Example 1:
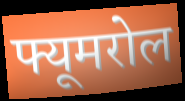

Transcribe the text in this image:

फ्यूमरोल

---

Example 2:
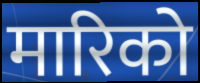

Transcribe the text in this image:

मारिको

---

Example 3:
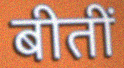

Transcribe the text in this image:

बीतीं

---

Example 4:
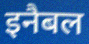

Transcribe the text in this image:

इनैबल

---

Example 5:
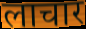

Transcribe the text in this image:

लाचार